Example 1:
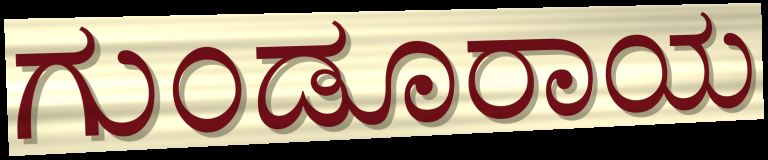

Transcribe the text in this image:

ಗುಂಡೂರಾಯ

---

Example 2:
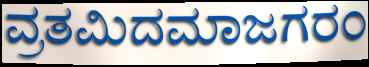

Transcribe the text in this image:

ವ್ರತಮಿದಮಾಜಗರಂ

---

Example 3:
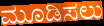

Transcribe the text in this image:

ಮೂಡಿಸಲು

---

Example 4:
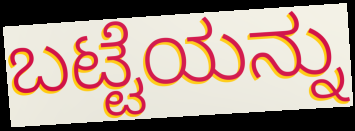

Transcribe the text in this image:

ಬಟ್ಟೆಯನ್ನು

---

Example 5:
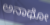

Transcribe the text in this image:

ಅನಾಥೋ